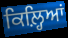
ਕਿਲ਼੍ਹਿਆਂ